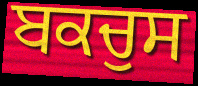
ਬਕਚੁਸ